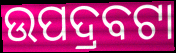
ଉପଦ୍ରବଟା